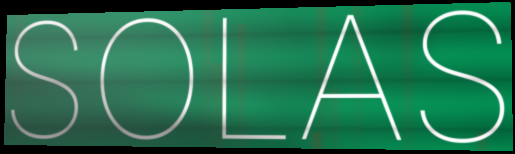
SOLAS